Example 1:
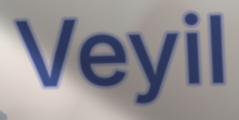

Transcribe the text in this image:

Veyil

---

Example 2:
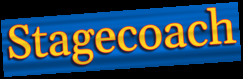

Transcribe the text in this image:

Stagecoach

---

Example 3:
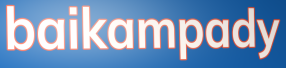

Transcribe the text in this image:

baikampady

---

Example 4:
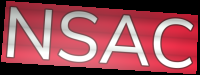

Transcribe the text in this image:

NSAC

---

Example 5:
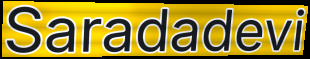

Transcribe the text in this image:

Saradadevi